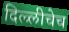
दिल्लीचेच